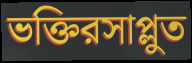
ভক্তিরসাপ্লুত